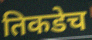
तिकडेच